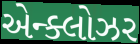
એન્ક્લોઝર